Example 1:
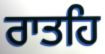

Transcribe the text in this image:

ਰਾਤਹਿ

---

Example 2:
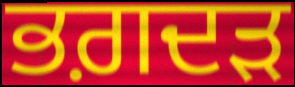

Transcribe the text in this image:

ਭਗ਼ਦੜ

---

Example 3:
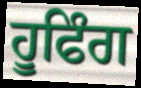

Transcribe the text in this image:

ਹੂਫਿੰਗ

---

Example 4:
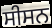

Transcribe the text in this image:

ਸੀਸਨ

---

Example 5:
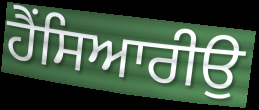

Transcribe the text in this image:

ਹੈਂਸਿਆਰੀਉ